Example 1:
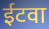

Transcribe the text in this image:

ईटवा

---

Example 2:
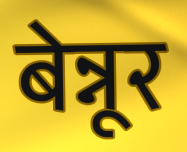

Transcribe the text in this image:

बेन्नूर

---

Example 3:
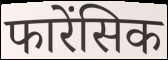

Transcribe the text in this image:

फारेंसिक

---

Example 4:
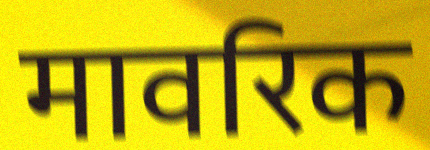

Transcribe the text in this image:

मावरिक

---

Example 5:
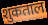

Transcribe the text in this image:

शुकताल